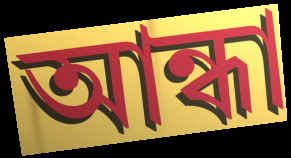
আন্ধা